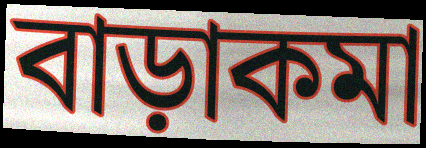
বাড়াকমা